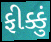
ફીક્કું